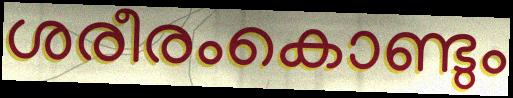
ശരീരംകൊണ്ടും